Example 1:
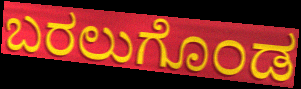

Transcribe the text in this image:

ಬರಲುಗೊಂಡ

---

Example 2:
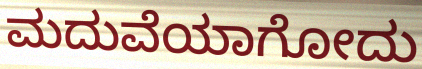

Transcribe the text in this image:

ಮದುವೆಯಾಗೋದು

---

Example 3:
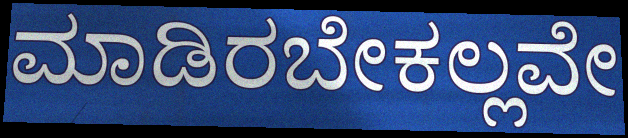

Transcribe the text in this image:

ಮಾಡಿರಬೇಕಲ್ಲವೇ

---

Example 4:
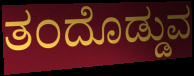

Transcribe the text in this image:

ತಂದೊಡ್ಡುವ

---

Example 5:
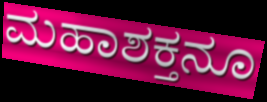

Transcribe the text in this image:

ಮಹಾಶಕ್ತನೂ